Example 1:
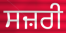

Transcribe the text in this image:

ਸਜ਼ਰੀ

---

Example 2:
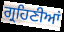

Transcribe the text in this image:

ਗ੍ਰਹਿਣੀਆਂ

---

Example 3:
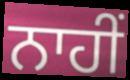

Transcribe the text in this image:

ਨਾਹੀਂ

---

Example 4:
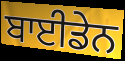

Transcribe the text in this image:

ਬਾਈਡੇਨ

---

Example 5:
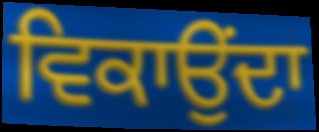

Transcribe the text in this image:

ਵਿਕਾਉੰਦਾ